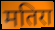
मतिरा